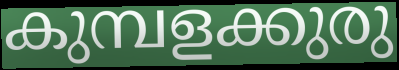
കുമ്പളക്കുരു